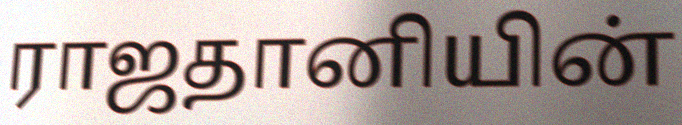
ராஜதானியின்